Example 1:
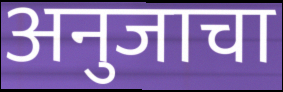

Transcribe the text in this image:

अनुजाचा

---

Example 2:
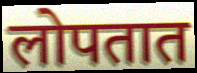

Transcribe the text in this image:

लोपतात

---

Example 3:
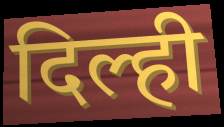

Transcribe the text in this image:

दिल्ही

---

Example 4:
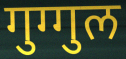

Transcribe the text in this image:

गुग्गुल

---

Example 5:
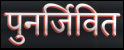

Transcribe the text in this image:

पुनर्जिवित